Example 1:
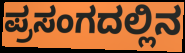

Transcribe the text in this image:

ಪ್ರಸಂಗದಲ್ಲಿನ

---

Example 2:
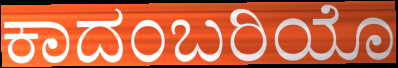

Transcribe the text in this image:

ಕಾದಂಬರಿಯೊ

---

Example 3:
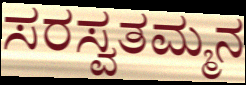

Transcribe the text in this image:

ಸರಸ್ವತಮ್ಮನ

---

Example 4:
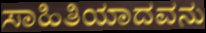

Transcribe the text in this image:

ಸಾಹಿತಿಯಾದವನು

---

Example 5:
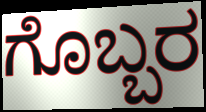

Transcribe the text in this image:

ಗೊಬ್ಬರ